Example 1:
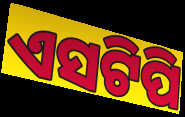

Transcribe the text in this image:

ଏସଟିପି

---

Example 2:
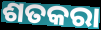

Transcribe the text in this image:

ଶତକରା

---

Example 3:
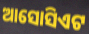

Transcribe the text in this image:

ଆସୋସିଏଟ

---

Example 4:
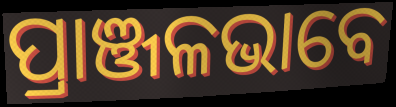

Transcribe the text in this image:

ପ୍ରାଞ୍ଜଳଭାବେ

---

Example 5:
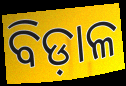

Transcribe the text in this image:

ବିଡ଼ାଳ